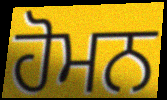
ਹੋਮਨ